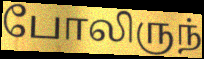
போலிருந்